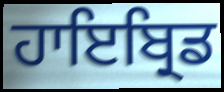
ਹਾਇਬ੍ਰਿਡ